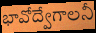
భావోద్వేగాలనీ